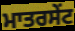
ਮਾਤਰਸੇਂਟ